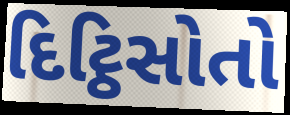
દિટ્ઠિસોતો